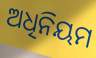
ଅଧିନିୟମ